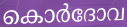
കൊർദോവ